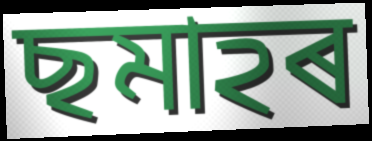
ছমাহৰ